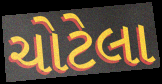
ચોટેલા